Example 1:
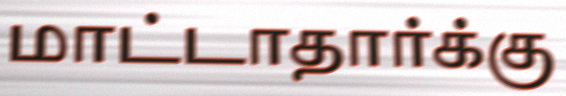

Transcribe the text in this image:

மாட்டாதார்க்கு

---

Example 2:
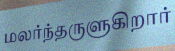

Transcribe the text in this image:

மலர்ந்தருளுகிறார்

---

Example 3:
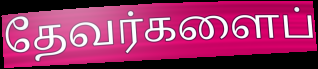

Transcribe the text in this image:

தேவர்களைப்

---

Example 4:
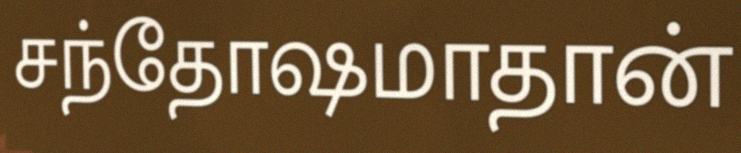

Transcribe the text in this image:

சந்தோஷமாதான்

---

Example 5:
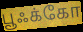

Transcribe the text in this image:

பூஃக்கோ